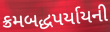
ક્રમબદ્ધપર્યાયની